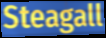
Steagall